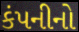
કંપનીનો